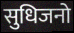
सुधिजनो